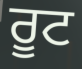
ਰੂਟ